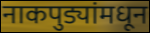
नाकपुड्यांमधून